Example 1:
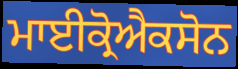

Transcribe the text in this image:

ਮਾਈਕ੍ਰੋਐਕਸੋਨ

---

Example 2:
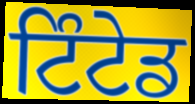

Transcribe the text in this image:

ਟਿੰਟੇਡ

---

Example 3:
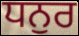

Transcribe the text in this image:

ਧਨੁਰ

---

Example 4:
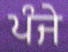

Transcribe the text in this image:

ਪੰਜੇ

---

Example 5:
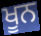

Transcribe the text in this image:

ਖੂਨ